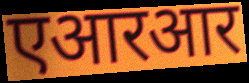
एआरआर